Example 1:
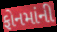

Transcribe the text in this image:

ફોનમાંની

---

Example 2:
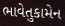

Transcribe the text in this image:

ભાવેતુકામેન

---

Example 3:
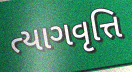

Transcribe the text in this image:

ત્યાગવૃત્તિ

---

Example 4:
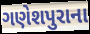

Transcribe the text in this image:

ગણેશપુરાના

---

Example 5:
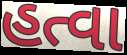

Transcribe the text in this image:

હત્વા